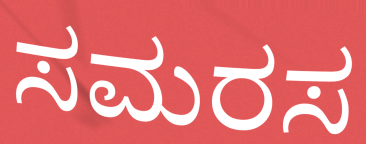
ಸಮರಸ